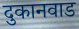
दुकानवाड